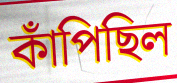
কাঁপিছিল